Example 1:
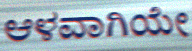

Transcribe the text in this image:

ಆಳವಾಗಿಯೇ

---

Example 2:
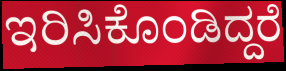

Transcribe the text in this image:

ಇರಿಸಿಕೊಂಡಿದ್ದರೆ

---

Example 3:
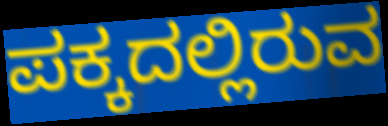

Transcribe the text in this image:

ಪಕ್ಕದಲ್ಲಿರುವ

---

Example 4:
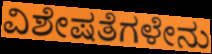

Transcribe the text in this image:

ವಿಶೇಷತೆಗಳೇನು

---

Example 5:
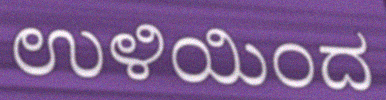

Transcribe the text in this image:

ಉಳಿಯಿಂದ